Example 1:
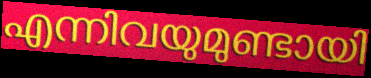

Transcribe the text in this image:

എന്നിവയുമുണ്ടായി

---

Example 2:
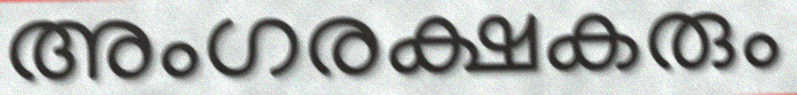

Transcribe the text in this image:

അംഗരക്ഷകരും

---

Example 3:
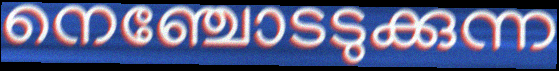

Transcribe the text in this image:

നെഞ്ചോടടുക്കുന്ന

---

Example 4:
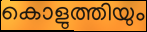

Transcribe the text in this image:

കൊളുത്തിയും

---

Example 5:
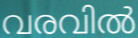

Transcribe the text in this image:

വരവിൽ